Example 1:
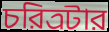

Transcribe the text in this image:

চরিত্রটার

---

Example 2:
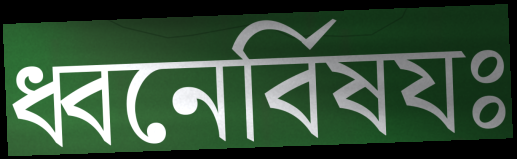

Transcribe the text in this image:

ধ্বনের্বিষযঃ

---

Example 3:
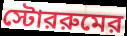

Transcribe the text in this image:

স্টোররুমের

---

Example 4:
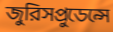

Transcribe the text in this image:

জুরিসপ্রুডেন্সে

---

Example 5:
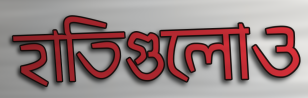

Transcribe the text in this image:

হাতিগুলোও